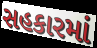
સહકારમાં